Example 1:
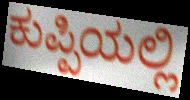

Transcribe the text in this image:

ಕುಪ್ಪಿಯಲ್ಲಿ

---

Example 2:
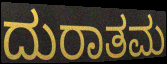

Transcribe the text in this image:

ದುರಾತಮ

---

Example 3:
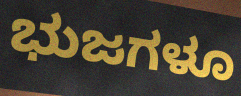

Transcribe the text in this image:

ಭುಜಗಳೂ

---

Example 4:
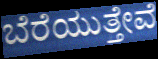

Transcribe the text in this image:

ಬೆರೆಯುತ್ತೇವೆ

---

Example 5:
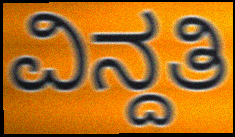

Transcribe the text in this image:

ವಿನ್ದತಿ